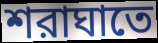
শরাঘাতে